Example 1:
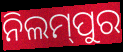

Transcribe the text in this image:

ନିଲମ୍‍ପୁର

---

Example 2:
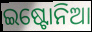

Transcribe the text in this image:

ଇଷ୍ଟୋନିଆ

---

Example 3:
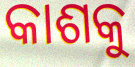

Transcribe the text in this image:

କାଶକୁ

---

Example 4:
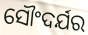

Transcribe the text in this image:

ସୌଂଦର୍ଯର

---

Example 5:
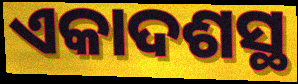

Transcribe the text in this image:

ଏକାଦଶସ୍ଥ